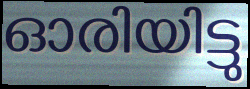
ഓരിയിട്ടു